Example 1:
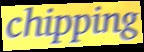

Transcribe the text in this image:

chipping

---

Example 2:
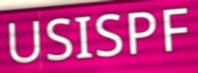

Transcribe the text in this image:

USISPF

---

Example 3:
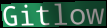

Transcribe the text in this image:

Gitlow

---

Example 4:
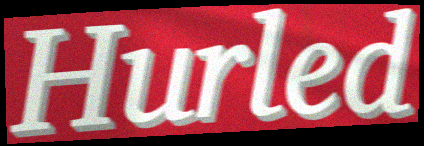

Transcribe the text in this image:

Hurled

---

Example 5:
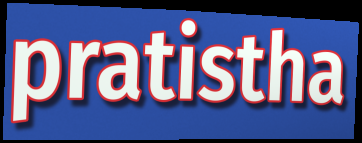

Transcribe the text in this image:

pratistha